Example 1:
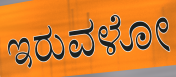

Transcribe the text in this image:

ಇರುವಳೋ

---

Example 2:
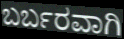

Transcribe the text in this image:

ಬರ್ಬರವಾಗಿ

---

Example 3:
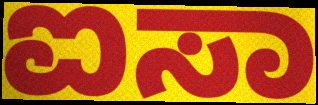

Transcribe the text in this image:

ಐಸಾ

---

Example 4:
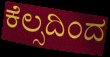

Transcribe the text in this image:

ಕೆಲ್ಸದಿಂದ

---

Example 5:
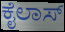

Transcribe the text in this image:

ಕೈಲಾಸ್